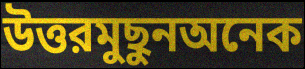
উত্তরমুছুনঅনেক